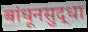
बांधूनसुद्धा